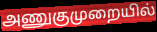
அணுகுமுறையில்